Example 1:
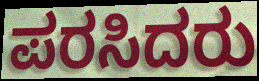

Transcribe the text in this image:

ಪರಸಿದರು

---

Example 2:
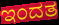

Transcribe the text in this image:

ಇಂದತ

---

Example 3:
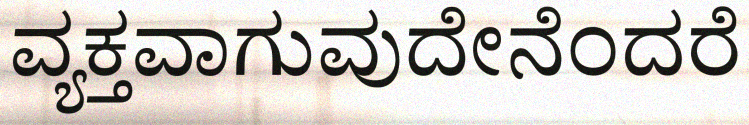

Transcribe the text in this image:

ವ್ಯಕ್ತವಾಗುವುದೇನೆಂದರೆ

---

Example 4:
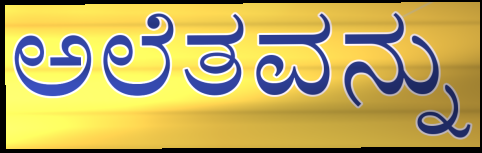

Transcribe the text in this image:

ಅಲೆತವನ್ನು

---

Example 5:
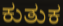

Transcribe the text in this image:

ಕುತುಕ